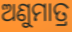
ଅଣୁମାତ୍ର